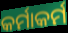
କର୍ମାକର୍ମ